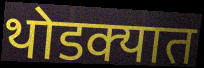
थोडक्यात